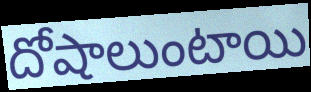
దోషాలుంటాయి